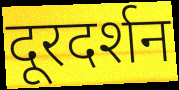
दूरदर्शन